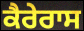
ਕੈਰੇਰਾਸ